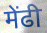
मेंढी